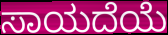
ಸಾಯದೆಯೆ